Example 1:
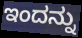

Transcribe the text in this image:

ಇಂದನ್ನು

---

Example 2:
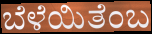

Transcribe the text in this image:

ಬೆಳೆಯಿತೆಂಬ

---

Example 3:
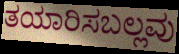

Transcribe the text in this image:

ತಯಾರಿಸಬಲ್ಲವು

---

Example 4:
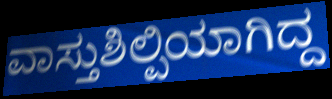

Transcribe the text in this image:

ವಾಸ್ತುಶಿಲ್ಪಿಯಾಗಿದ್ದ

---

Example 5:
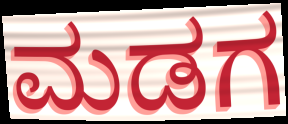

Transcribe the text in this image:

ಮಡಗ